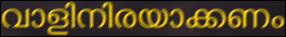
വാളിനിരയാക്കണം